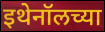
इथेनॉलच्या